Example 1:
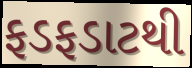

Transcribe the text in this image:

ફડફડાટથી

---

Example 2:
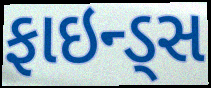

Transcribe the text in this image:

ફાઇન્ડ્સ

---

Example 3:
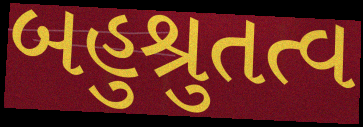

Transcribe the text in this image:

બહુશ્રુતત્વ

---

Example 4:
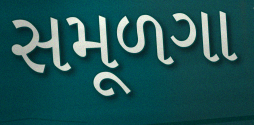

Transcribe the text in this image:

સમૂળગા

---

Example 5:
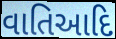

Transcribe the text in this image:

વાતિઆદિ